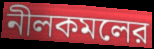
নীলকমলের